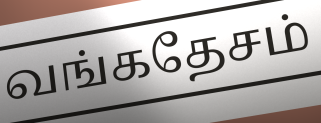
வங்கதேசம்